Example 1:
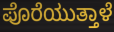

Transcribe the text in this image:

ಪೊರೆಯುತ್ತಾಳೆ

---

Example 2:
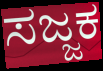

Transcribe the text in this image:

ಸಜ್ಜಕ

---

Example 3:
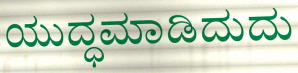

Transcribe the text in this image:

ಯುದ್ಧಮಾಡಿದುದು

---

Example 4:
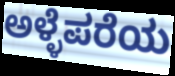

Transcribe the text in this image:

ಅಳ್ಳೆಪರೆಯ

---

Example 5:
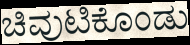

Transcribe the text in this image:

ಚಿವುಟಿಕೊಂಡು